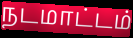
நடமாட்டம்